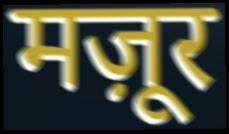
मज़ूर